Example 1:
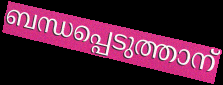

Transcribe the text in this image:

ബന്ധപ്പെടുത്താന്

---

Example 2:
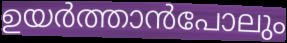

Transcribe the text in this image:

ഉയർത്താൻപോലും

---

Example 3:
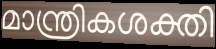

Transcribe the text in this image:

മാന്ത്രികശക്തി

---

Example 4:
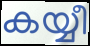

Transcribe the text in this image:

കയ്യീ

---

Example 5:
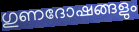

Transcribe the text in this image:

ഗുണദോഷങ്ങളും